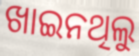
ଖାଇନଥିଲୁ